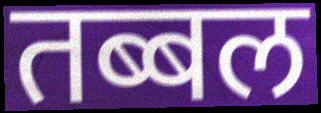
तब्बल